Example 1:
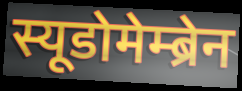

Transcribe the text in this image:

स्यूडोमेम्ब्रेन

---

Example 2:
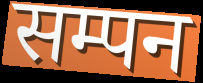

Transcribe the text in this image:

सम्पन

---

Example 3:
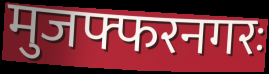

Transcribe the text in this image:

मुजफ्फरनगरः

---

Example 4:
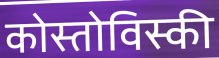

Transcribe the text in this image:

कोस्तोविस्की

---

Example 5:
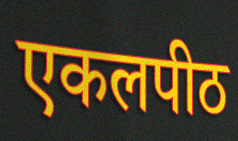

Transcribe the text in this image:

एकलपीठ